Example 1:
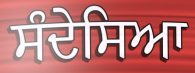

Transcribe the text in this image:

ਸੰਦੇਸਿਆ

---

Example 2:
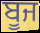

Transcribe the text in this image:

ਬੂਜ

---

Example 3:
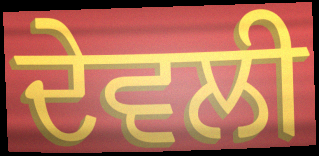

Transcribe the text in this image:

ਦੇਵਲੀ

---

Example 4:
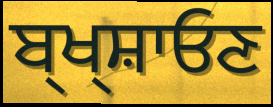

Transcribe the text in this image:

ਬ੍ਖ੍ਸ਼ਾਓਣ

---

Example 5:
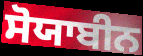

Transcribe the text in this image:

ਸੋਯਾਬੀਨ